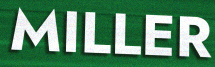
MILLER